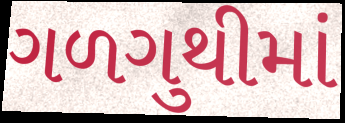
ગળગુથીમાં